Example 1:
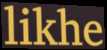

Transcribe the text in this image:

likhe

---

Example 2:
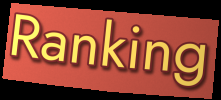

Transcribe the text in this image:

Ranking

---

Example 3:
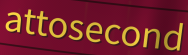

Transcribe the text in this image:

attosecond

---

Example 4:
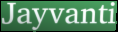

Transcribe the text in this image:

Jayvanti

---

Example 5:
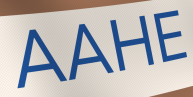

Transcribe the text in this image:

AAHE